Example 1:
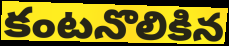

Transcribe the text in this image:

కంటనొలికిన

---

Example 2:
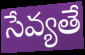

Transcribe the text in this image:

సేవ్యతే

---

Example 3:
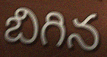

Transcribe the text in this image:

బిగిన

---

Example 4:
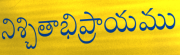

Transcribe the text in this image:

నిశ్చితాభిప్రాయము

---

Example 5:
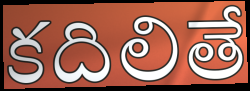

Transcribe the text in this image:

కదిలితే